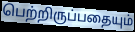
பெற்றிருப்பதையும்